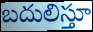
బదులిస్తూ